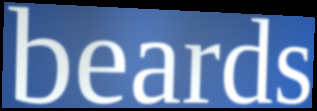
beards